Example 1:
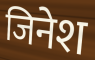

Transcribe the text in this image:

जिनेश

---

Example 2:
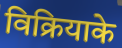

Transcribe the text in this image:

विक्रियाके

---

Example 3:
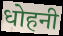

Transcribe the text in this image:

धोहनी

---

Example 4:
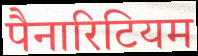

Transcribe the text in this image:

पैनारिटियम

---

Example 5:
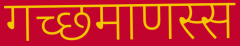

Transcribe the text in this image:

गच्छमाणस्स